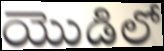
యొడిలో